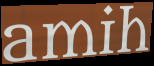
amih